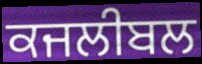
ਕਜਲੀਬਲ